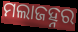
ମଲାଜହ୍ନର